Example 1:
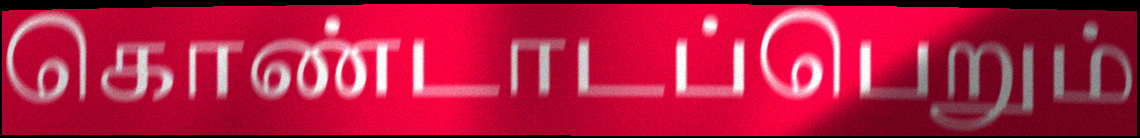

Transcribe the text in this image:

கொண்டாடப்பெறும்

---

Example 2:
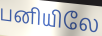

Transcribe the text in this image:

பனியிலே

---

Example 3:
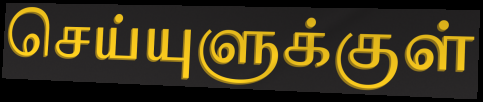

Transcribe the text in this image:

செய்யுளுக்குள்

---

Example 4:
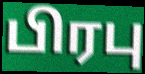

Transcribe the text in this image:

பிரபு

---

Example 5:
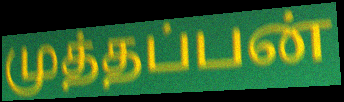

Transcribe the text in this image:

முத்தப்பன்